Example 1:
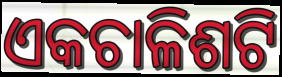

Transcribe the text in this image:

ଏକଚାଳିଶଟି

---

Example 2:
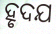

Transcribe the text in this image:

ହୃଦଯ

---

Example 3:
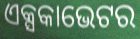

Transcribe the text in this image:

ଏକ୍ସକାଭେଟର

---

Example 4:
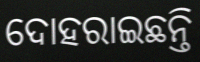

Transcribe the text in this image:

ଦୋହରାଇଛନ୍ତି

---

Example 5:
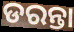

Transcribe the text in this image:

ଡରନ୍ତା